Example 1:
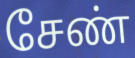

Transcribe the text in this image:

சேண்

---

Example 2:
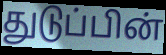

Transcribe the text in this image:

துடுப்பின்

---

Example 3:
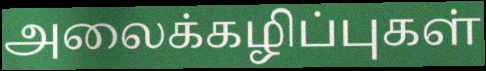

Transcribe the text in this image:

அலைக்கழிப்புகள்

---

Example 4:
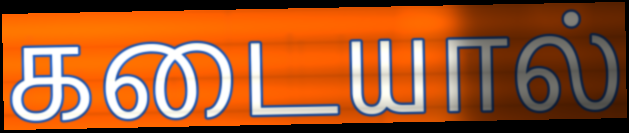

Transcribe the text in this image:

கடையால்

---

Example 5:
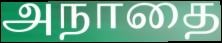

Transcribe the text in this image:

அநாதை